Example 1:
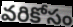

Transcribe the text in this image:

వరికోసం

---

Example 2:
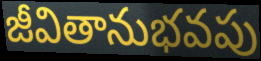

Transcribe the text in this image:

జీవితానుభవపు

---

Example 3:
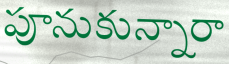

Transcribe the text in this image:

పూనుకున్నారా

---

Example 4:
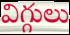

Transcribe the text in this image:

విగ్గులు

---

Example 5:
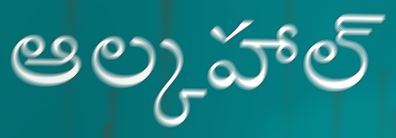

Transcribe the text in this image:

ఆల్కహాల్